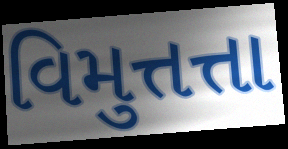
વિમુત્તત્તા